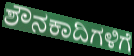
ಶೌನಕಾದಿಗಳಿಗೆ